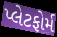
પ્લેટફોર્મ